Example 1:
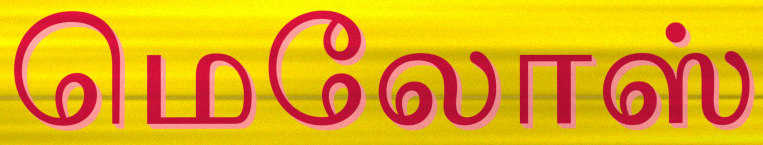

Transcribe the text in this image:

மெலோஸ்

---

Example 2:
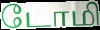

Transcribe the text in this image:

டோமி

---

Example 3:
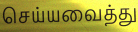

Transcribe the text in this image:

செய்யவைத்து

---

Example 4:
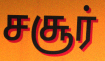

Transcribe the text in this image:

சசூர்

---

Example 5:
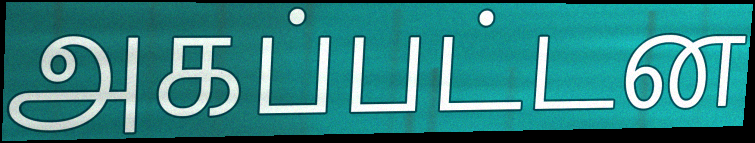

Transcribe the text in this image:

அகப்பட்டன